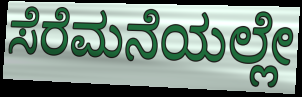
ಸೆರೆಮನೆಯಲ್ಲೇ